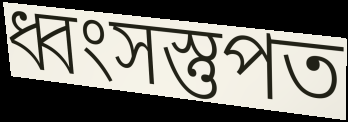
ধ্বংসস্তুপত